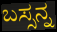
ಬಸ್ಸನ್ನ